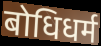
बोधिधर्म